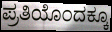
ಪ್ರತಿಯೊಂದಕ್ಕೂ